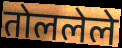
तोललेले